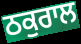
ਠਕੁਰਾਲ